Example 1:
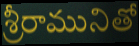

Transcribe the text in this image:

శ్రీరామునితో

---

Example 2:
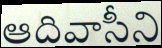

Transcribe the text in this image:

ఆదివాసీని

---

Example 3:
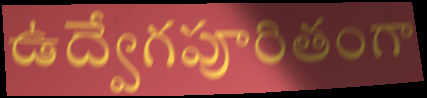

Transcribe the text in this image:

ఉద్వేగపూరితంగా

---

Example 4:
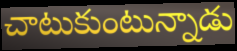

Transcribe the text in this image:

చాటుకుంటున్నాడు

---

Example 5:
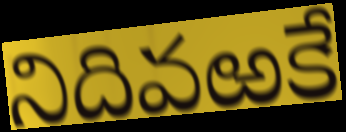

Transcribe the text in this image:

నిదివఱకే